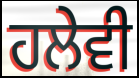
ਹਲੇਵੀ